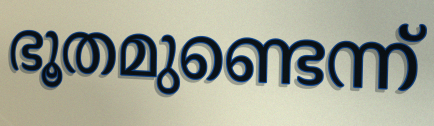
ഭൂതമുണ്ടെന്ന്